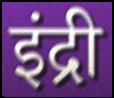
इंद्री